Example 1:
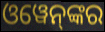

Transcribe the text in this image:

ଓୱେନ୍‌ଙ୍କର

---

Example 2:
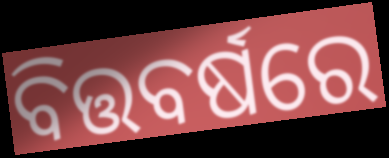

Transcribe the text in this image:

ବିତ୍ତବର୍ଷରେ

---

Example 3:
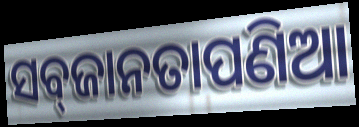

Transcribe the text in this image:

ସବ୍‌ଜାନତାପଣିଆ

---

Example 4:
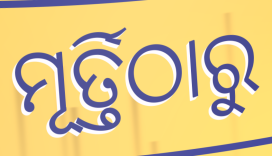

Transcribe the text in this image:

ମୂର୍ତ୍ତିଠାରୁ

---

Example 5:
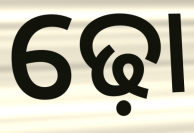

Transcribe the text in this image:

ଢ଼ୋ